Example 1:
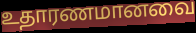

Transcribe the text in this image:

உதாரணமானவை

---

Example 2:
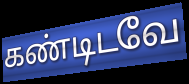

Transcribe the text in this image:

கண்டிடவே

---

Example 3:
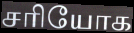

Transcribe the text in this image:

சரியோக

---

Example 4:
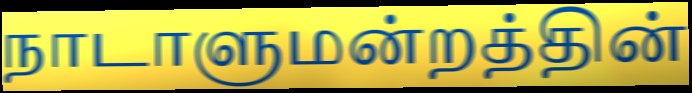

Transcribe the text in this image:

நாடாளுமன்றத்தின்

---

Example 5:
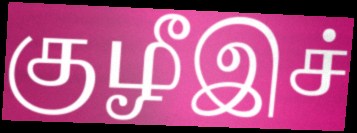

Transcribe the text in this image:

குழீஇச்